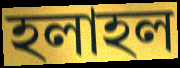
হলাহল